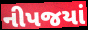
નીપજયાં